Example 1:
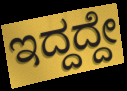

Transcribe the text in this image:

ಇದ್ದದ್ದೇ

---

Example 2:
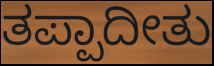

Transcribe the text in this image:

ತಪ್ಪಾದೀತು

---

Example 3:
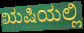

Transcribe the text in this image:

ಋಷಿಯಲ್ಲಿ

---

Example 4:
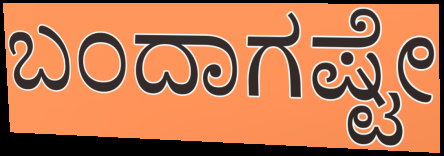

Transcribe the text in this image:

ಬಂದಾಗಷ್ಟೇ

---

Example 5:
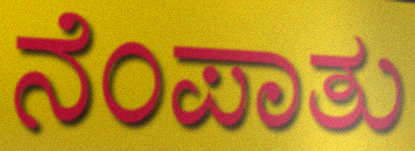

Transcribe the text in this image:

ನೆಂಪಾತು